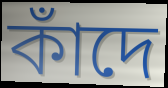
কাঁদে